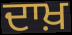
ਦਾਖ਼